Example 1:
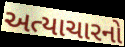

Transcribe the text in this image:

અત્યાચારનો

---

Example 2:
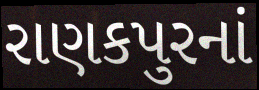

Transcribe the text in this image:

રાણકપુરનાં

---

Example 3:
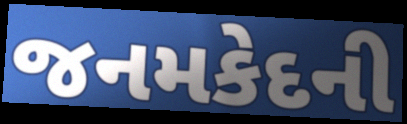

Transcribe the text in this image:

જનમકેદની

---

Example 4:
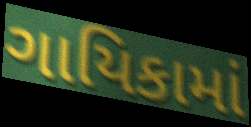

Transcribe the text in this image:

ગાયિકામાં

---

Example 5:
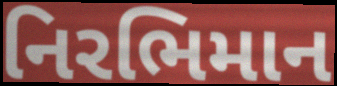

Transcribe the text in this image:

નિરભિમાન